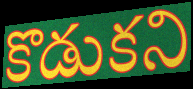
కొడుకని